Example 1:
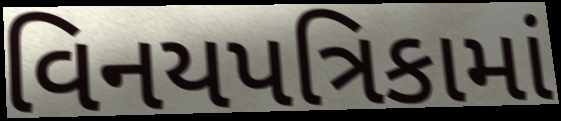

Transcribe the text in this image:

વિનયપત્રિકામાં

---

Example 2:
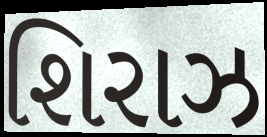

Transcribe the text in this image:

શિરાઝ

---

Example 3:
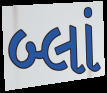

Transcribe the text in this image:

બ્લાં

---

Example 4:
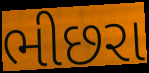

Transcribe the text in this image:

ભીછરા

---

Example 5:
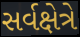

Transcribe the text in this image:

સર્વક્ષેત્રે